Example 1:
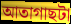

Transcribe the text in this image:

আতাগাছটা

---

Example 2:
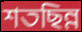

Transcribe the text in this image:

শতছিন্ন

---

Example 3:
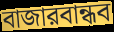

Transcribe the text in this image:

বাজারবান্ধব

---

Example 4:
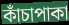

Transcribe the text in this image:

কাঁচাপাকা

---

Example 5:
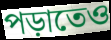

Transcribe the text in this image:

পড়াতেও